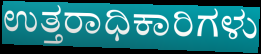
ಉತ್ತರಾಧಿಕಾರಿಗಳು